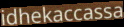
idhekaccassa